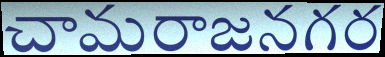
చామరాజనగర